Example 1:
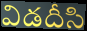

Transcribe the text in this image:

విడదీసి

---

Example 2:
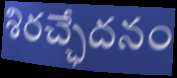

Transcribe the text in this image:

శిరచ్ఛేదనం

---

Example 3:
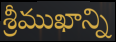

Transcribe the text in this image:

శ్రీముఖాన్ని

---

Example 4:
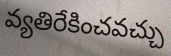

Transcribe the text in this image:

వ్యతిరేకించవచ్చు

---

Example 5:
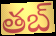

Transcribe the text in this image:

తబ్